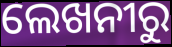
ଲେଖନୀରୁ